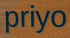
priyo